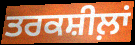
ਤਰਕਸ਼ੀਲ਼ਾਂ